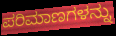
ಪರಿಮಾಣಗಳನ್ನು